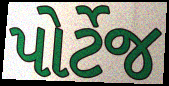
પોર્ટેજ